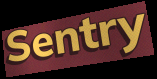
Sentry